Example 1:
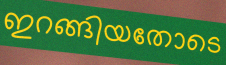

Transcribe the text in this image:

ഇറങ്ങിയതോടെ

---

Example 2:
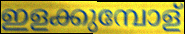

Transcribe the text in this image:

ഇളക്കുമ്പോള്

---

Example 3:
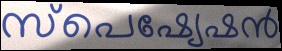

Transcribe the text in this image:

സ്പെഷ്യേഷൻ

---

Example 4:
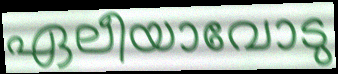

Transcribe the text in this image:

ഏലീയാവോടു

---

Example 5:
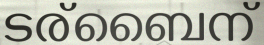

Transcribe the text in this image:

ടര്ബൈന്